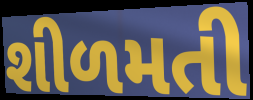
શીળમતી